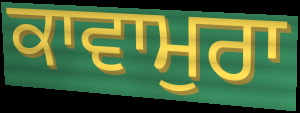
ਕਾਵਾਮੁਰਾ